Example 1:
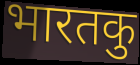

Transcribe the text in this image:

भारतकु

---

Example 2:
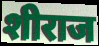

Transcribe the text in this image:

शीराज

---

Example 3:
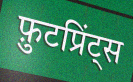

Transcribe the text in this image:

फ़ुटप्रिंट्स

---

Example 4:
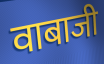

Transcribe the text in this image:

वाबाजी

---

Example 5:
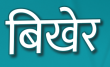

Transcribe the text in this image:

बिखेर